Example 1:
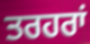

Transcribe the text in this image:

ਤਰਹਰਾਂ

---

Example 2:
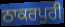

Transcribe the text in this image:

ਠਾਕਰਪੁਰੀ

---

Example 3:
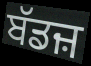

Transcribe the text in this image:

ਬੱਡਜ਼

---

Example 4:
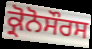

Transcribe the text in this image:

ਕ੍ਰੋਨੋਸੌਰਸ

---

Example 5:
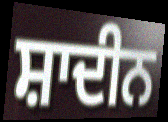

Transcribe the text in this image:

ਸ਼ਾਦੀਨ